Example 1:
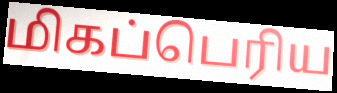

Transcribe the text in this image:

மிகப்பெரிய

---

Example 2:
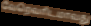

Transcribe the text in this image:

வேறெவரிடமாவது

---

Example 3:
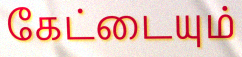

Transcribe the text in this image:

கேட்டையும்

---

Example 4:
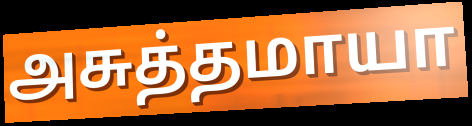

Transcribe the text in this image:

அசுத்தமாயா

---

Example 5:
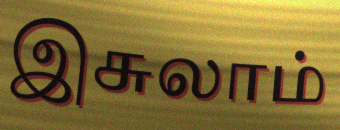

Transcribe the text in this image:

இசுலாம்